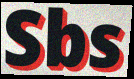
Sbs